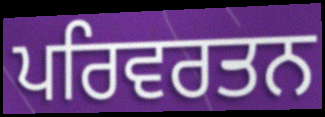
ਪਰਿਵਰਤਨ